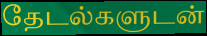
தேடல்களுடன்